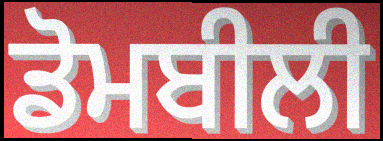
ਡੋਮਬੀਲੀ